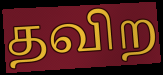
தவிற